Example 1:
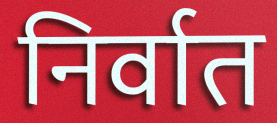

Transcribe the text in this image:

निर्वात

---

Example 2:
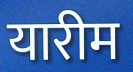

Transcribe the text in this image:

यारीम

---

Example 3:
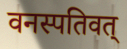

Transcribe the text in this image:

वनस्पतिवत्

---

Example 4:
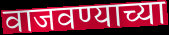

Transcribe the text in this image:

वाजवण्याच्या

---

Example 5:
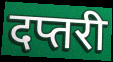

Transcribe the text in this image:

दप्तरी